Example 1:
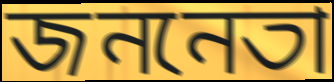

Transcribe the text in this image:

জননেতা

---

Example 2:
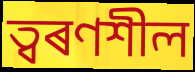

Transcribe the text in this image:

ত্বৰণশীল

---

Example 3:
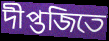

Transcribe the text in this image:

দীপ্তজিতে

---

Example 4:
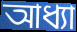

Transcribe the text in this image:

আধ্যা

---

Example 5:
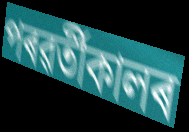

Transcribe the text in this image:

পৰৱৰ্তীকালৰ